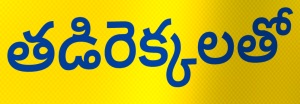
తడిరెక్కలతో